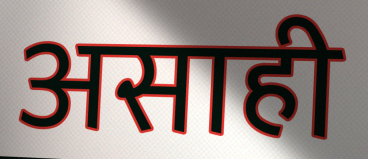
असाही